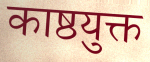
काष्ठयुक्त